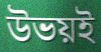
উভয়ই